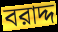
বরাদ্দ